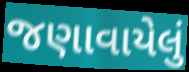
જણાવાયેલું